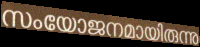
സംയോജനമായിരുന്നു